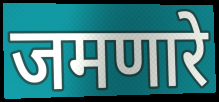
जमणारे